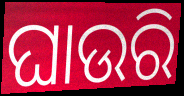
ଘାଉରି